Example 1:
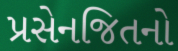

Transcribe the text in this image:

પ્રસેનજિતનો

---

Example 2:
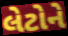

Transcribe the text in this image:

લેટોને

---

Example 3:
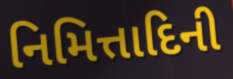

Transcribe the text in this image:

નિમિત્તાદિની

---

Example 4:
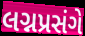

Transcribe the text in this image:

લગ્નપ્રસંગે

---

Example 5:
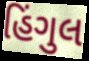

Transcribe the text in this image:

હિંગુલ